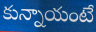
కున్నాయంటే